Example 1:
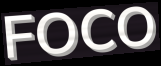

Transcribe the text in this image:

FOCO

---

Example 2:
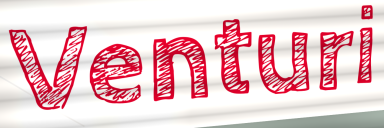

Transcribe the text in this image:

Venturi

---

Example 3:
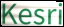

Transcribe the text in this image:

Kesri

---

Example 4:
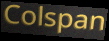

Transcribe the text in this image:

Colspan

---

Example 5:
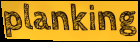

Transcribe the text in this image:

planking